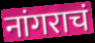
नांगराचं